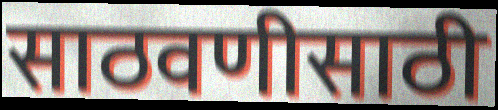
साठवणीसाठी